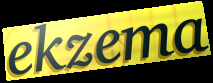
ekzema